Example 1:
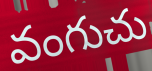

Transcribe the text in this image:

వంగుచు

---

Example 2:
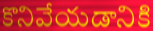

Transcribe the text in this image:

కొనివేయడానికి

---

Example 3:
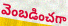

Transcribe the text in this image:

వెంబడించగా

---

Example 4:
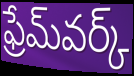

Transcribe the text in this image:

ఫ్రేమ్‌వర్క్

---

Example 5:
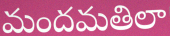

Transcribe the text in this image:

మందమతిలా